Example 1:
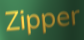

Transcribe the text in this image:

Zipper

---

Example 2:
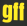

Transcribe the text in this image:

gff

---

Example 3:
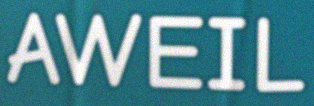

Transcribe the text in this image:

AWEIL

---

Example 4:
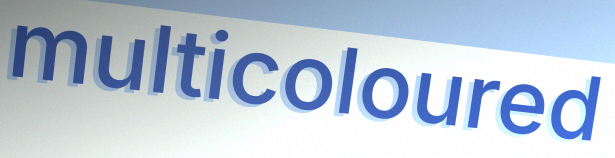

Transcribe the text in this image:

multicoloured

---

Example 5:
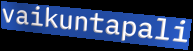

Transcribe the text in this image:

vaikuntapali